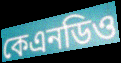
কেএনডিও